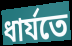
ধার্যতে